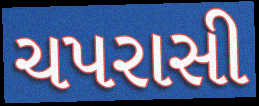
ચપરાસી